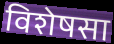
विशेषसा